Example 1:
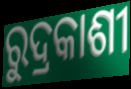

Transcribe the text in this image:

ରୁଦ୍ରକାଶୀ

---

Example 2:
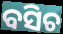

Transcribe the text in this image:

ବସିଚ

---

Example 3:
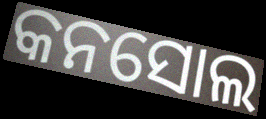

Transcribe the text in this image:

କନସୋଲ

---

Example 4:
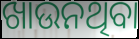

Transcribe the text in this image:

ଖାଉନଥିବା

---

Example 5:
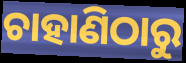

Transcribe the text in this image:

ଚାହାଣିଠାରୁ